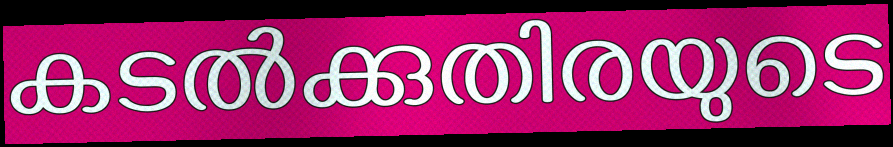
കടൽക്കുതിരയുടെ